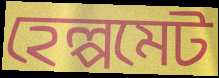
হেল্পমেট